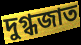
দুগ্ধজাত